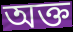
অক্ত